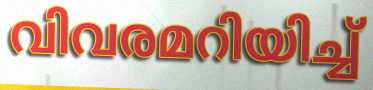
വിവരമറിയിച്ച്